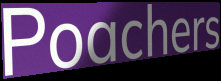
Poachers